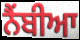
ਨੈਂਬੀਆ